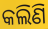
କଲିଣି